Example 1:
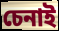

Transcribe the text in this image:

চেনাই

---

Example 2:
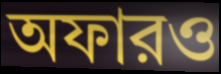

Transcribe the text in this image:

অফারও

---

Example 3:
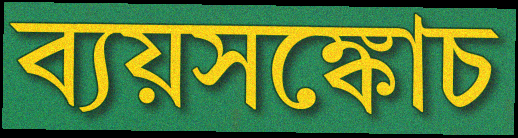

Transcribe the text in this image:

ব্যয়সঙ্কোচ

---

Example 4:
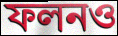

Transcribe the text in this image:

ফলনও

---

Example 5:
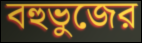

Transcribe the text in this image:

বহুভুজের